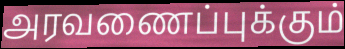
அரவணைப்புக்கும்